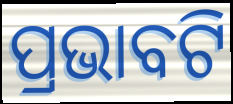
ପ୍ରଭାବଟି